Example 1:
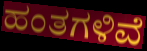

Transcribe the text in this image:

ಹಂತಗಳಿವೆ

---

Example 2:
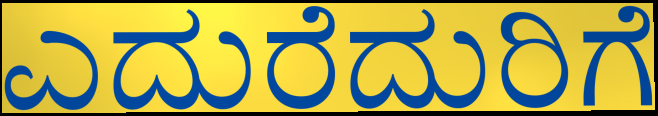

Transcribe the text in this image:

ಎದುರೆದುರಿಗೆ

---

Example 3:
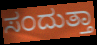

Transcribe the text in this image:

ಸಂದುತ್ತಾ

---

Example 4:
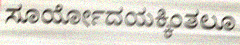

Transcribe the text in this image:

ಸೂರ್ಯೋದಯಕ್ಕಿಂತಲೂ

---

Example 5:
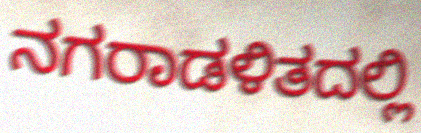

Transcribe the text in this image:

ನಗರಾಡಳಿತದಲ್ಲಿ